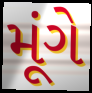
મૂંગે